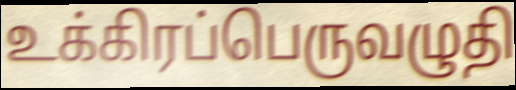
உக்கிரப்பெருவழுதி